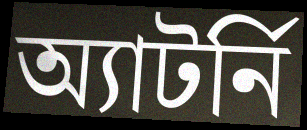
অ্যাটর্নি